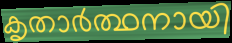
കൃതാർത്ഥനായി